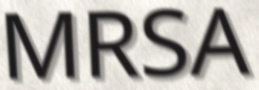
MRSA